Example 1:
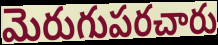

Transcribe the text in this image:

మెరుగుపరచారు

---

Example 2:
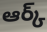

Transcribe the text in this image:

ఆర్క్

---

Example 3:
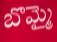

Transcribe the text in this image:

బొమ్మై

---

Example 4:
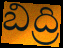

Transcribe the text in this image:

బిద్రి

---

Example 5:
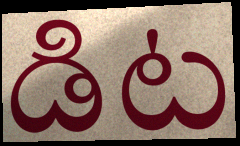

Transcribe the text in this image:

డిట